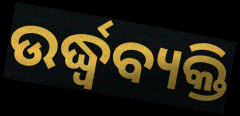
ଉର୍ଦ୍ଧ୍ୱବ୍ୟକ୍ତି